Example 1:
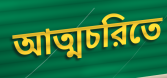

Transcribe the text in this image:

আত্মচরিতে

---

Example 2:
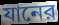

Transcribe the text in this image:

যানের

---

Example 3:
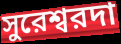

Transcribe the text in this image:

সুরেশ্বরদা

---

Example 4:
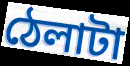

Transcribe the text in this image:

ঠেলাটা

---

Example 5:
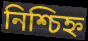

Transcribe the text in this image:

নিশ্চিহ্ন